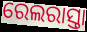
ରେଲରାସ୍ତା